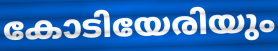
കോടിയേരിയും